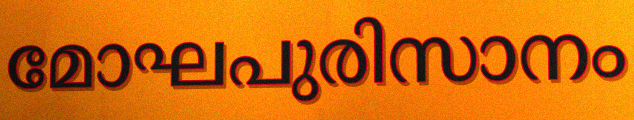
മോഘപുരിസാനം